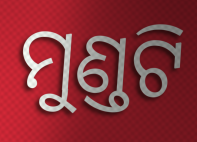
ମୁଣ୍ଡଟି